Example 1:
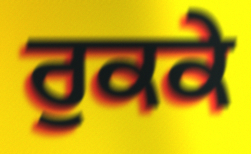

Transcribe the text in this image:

ਰੁਕਕੇ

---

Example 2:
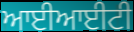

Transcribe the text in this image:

ਆਈਆਈਟੀ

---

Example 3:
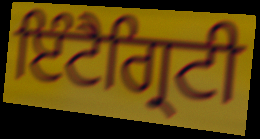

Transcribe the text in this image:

ਇੰਟੈਗ੍ਰਿਟੀ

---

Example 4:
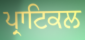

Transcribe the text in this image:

ਪ੍ਰਾਟਿਕਲ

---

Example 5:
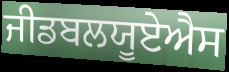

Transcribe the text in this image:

ਜੀਡਬਲਯੂਏਐਸ